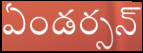
ఏండర్సన్